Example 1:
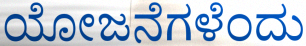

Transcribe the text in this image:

ಯೋಜನೆಗಳೆಂದು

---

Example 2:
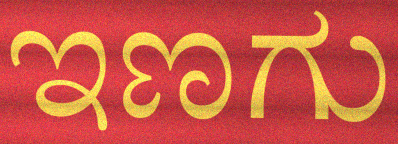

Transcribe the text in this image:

ಇಣಗು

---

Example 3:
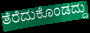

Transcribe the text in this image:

ತೆರೆದುಕೊಂಡದ್ದು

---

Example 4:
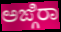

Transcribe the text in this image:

ಅಙ್ಗಿರಾ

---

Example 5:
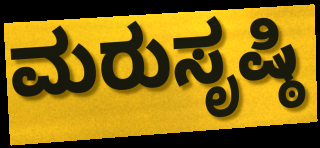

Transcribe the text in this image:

ಮರುಸೃಷ್ಠಿ